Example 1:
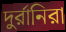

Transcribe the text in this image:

দুর্রানিরা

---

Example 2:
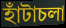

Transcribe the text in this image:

হাঁটাচলা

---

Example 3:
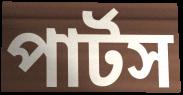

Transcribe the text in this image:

পার্টস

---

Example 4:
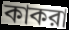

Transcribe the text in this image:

কাকরা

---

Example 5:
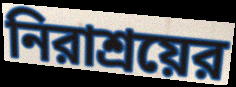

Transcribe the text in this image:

নিরাশ্রয়ের